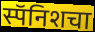
स्पॅनिशचा